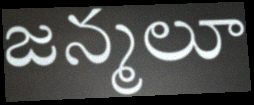
జన్మలూ